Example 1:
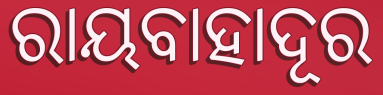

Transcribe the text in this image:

ରାୟବାହାଦୂର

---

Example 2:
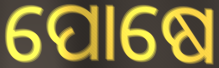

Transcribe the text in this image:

ପୋଷେ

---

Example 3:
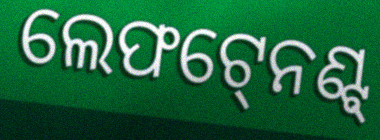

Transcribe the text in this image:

ଲେଫଟ୍‍ନେଣ୍ଟ୍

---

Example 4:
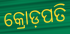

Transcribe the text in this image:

କ୍ରୋଡ଼ପତି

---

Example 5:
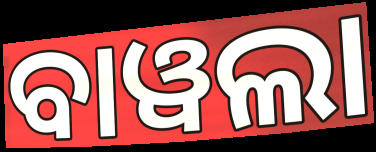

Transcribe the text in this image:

ବାୱଲା